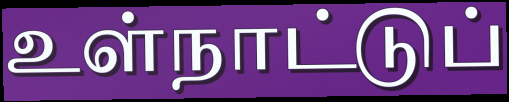
உள்நாட்டுப்